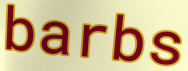
barbs